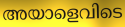
അയാളെവിടെ